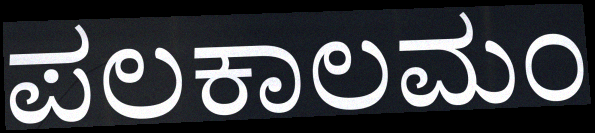
ಪಲಕಾಲಮಂ